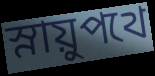
স্নায়ুপথে